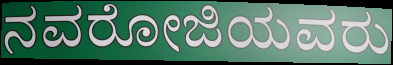
ನವರೋಜಿಯವರು